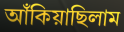
আঁকিয়াছিলাম